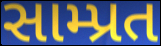
સામ્પ્રત